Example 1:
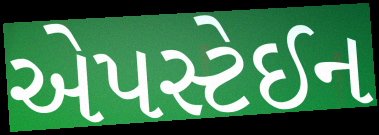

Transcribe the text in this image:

એપસ્ટેઈન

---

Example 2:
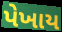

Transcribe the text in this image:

પેખાય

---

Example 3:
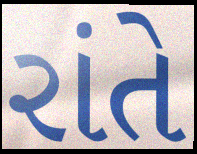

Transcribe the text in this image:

રાંતે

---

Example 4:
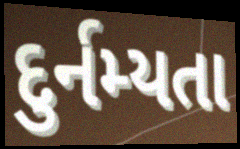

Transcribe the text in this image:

દુર્નમ્યતા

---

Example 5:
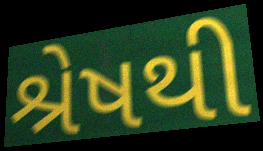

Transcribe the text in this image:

શ્રેષથી